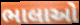
ભાલાઓ